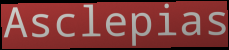
Asclepias